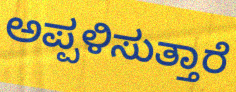
ಅಪ್ಪಳಿಸುತ್ತಾರೆ